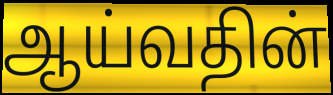
ஆய்வதின்